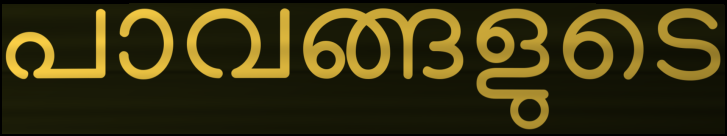
പാവങ്ങളുടെ